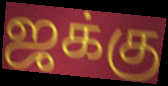
ஜக்கு